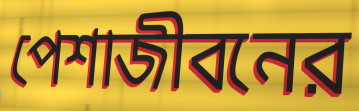
পেশাজীবনের